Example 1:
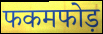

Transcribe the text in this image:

फकमफोड़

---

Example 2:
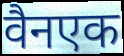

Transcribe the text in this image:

वैनएक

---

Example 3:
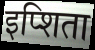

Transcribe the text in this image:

इप्शिता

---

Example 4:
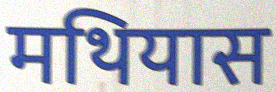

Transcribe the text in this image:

मथियास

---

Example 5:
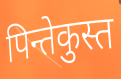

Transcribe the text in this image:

पिन्तेकुस्त